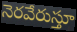
నెరవేరుస్తూ